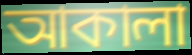
আকালা